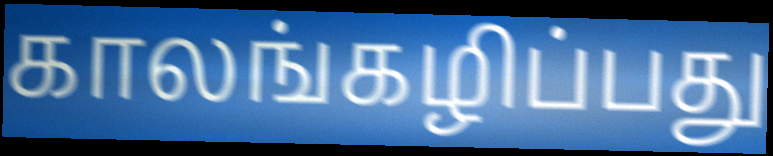
காலங்கழிப்பது